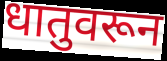
धातुवरून